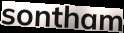
sontham